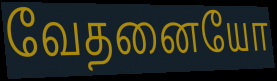
வேதனையோ